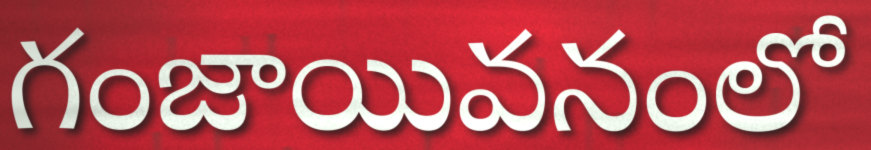
గంజాయివనంలో